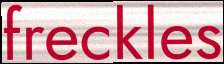
freckles